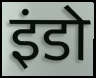
इंडो